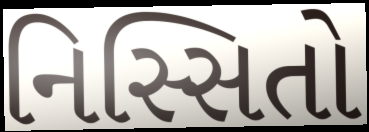
નિસ્સિતો